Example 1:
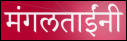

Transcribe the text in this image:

मंगलताईंनी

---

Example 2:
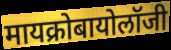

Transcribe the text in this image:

मायक्रोबायोलॉजी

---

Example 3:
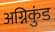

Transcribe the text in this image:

अग्निकुंड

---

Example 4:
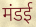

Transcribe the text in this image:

मंडई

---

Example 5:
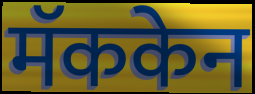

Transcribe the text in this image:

मॅककेन